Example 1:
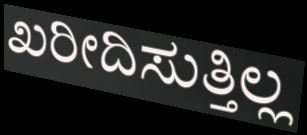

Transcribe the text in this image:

ಖರೀದಿಸುತ್ತಿಲ್ಲ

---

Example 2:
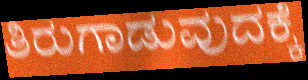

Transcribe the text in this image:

ತಿರುಗಾಡುವುದಕ್ಕೆ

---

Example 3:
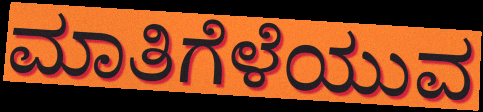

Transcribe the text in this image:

ಮಾತಿಗೆಳೆಯುವ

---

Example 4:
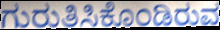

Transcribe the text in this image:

ಗುರುತಿಸಿಕೊಂಡಿರುವ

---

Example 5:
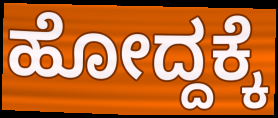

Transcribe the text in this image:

ಹೋದ್ದಕ್ಕೆ